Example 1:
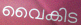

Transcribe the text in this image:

വൈകിട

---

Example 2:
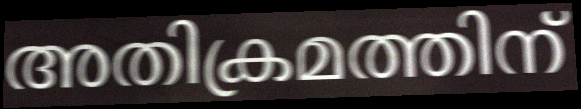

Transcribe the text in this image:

അതിക്രമത്തിന്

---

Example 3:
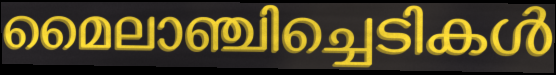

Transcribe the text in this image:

മൈലാഞ്ചിച്ചെടികൾ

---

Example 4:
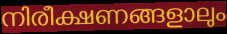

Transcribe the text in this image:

നിരീക്ഷണങ്ങളാലും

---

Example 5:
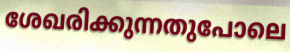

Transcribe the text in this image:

ശേഖരിക്കുന്നതുപോലെ